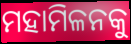
ମହାମିଳନକୁ